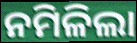
ନମିଳିଲା